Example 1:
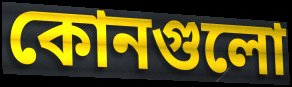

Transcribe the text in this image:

কোনগুলো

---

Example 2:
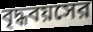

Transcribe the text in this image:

বৃদ্ধবয়সের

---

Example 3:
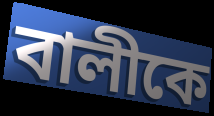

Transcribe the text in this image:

বালীকে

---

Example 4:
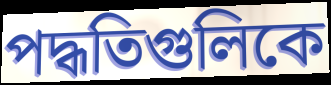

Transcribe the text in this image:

পদ্ধতিগুলিকে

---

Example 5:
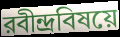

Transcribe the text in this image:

রবীন্দ্রবিষয়ে